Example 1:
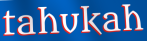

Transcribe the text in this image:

tahukah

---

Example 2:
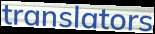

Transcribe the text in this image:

translators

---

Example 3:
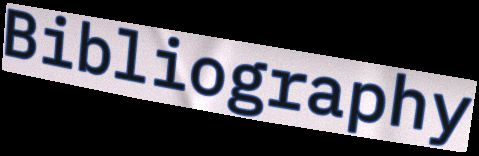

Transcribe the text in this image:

Bibliography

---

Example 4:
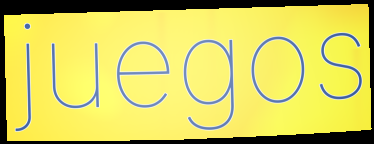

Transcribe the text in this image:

juegos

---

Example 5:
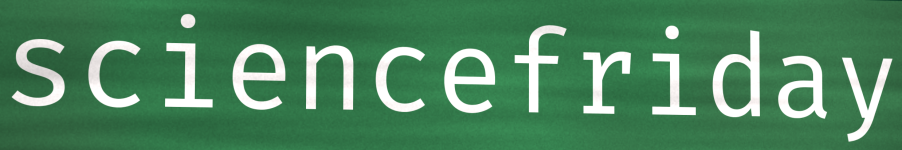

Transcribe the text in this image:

sciencefriday